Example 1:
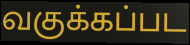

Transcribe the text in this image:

வகுக்கப்பட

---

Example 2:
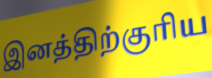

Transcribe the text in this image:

இனத்திற்குரிய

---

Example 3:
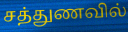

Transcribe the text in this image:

சத்துணவில்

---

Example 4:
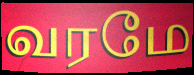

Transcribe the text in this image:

வரமே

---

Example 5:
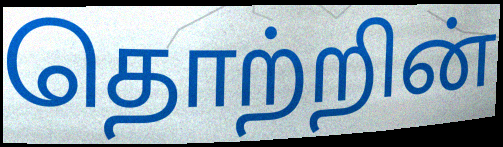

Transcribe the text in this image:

தொற்றின்